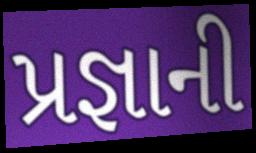
પ્રજ્ઞાની